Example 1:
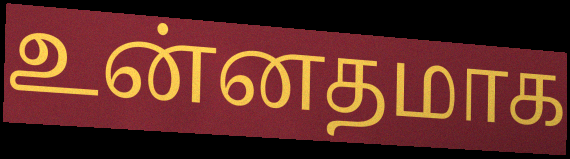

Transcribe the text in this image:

உன்னதமாக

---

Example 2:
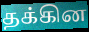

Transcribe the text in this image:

தக்கின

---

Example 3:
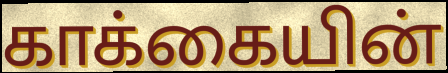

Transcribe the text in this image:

காக்கையின்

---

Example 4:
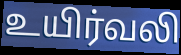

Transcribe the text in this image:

உயிர்வலி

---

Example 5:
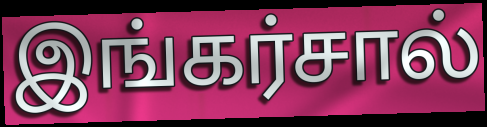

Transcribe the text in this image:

இங்கர்சால்